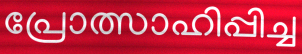
പ്രോത്സാഹിപ്പിച്ച